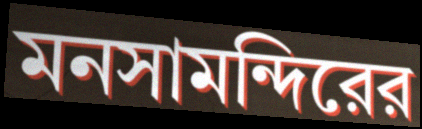
মনসামন্দিরের